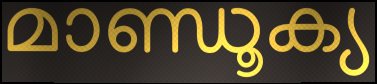
മാണ്ഡൂക്യ